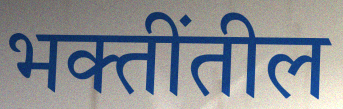
भक्तींतील